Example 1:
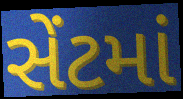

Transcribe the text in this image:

સેંટમાં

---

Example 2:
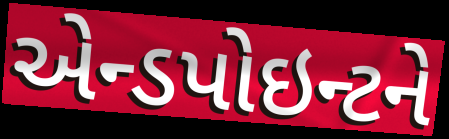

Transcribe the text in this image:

એન્ડપોઇન્ટને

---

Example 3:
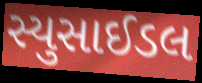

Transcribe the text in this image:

સ્યુસાઈડલ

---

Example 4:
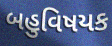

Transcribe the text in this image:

બહુવિષયક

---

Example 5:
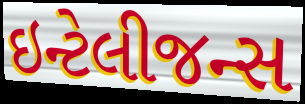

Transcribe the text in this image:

ઇન્ટેલીજન્સ